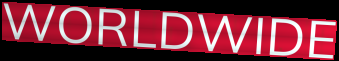
WORLDWIDE